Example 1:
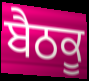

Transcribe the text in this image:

ਬੈਠਕੂ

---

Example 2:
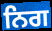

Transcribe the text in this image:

ਨਿਗ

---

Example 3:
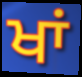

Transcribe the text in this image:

ਖਾਂ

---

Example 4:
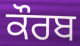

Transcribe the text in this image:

ਕੌਰਬ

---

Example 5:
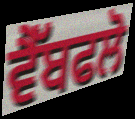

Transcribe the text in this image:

ਵੈੱਬਫਲੋ